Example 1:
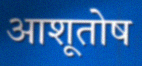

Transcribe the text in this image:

आशूतोष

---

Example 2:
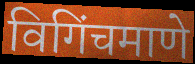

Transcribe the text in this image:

विगिंचमाणे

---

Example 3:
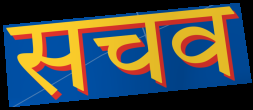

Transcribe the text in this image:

सचव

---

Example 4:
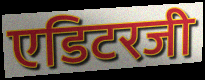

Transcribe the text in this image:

एडिटरजी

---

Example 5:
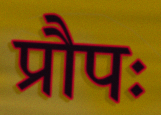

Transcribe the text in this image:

प्रौपः